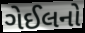
ગેઈલનો